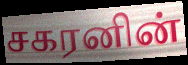
சகரனின்